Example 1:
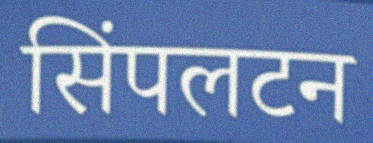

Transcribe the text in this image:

सिंपलटन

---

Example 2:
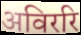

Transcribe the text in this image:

अविररि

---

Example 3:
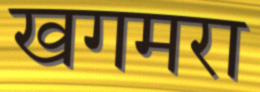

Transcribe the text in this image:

खगमरा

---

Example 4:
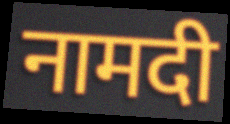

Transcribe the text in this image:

नामदी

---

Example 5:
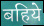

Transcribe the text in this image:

बहिये